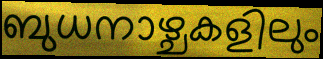
ബുധനാഴ്ചകളിലും